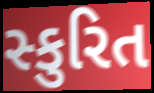
સ્કુરિત